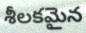
శీలకమైన